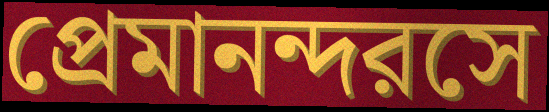
প্রেমানন্দরসে